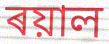
ৰয়াল